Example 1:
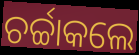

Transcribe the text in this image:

ଚର୍ଚ୍ଚାକଲେ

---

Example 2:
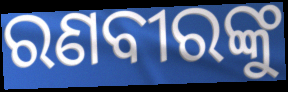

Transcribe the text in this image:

ରଣବୀରଙ୍କୁ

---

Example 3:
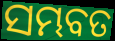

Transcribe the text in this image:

ସମ୍ଭବତ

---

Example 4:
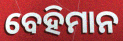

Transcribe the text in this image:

ବେହିମାନ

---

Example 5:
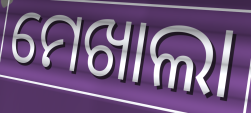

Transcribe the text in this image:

ମେଖାଲା